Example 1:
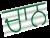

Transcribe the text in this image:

ਚਾਨ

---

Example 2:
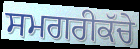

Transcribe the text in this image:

ਸਮਗਰੀਕੱਚੇ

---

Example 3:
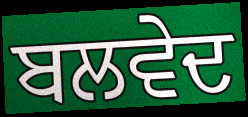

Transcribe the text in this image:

ਬਲਵੇਦ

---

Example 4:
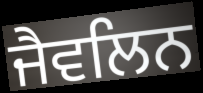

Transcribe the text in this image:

ਜੈਵਲਿਨ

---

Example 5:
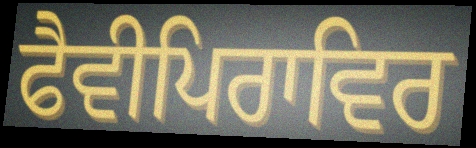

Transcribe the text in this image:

ਫੈਵੀਪਿਰਾਵਿਰ